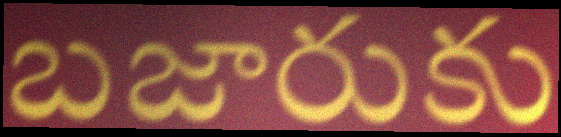
బజారుకు